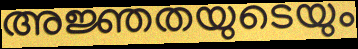
അജ്ഞതയുടെയും